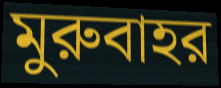
মুরুবাহর